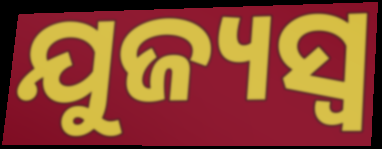
ଯୁଜ୍ୟସ୍ୱ